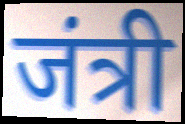
जंत्री